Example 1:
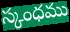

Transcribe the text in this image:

స్కంధము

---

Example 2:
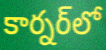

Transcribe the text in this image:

కార్నర్‌లో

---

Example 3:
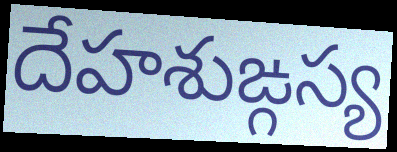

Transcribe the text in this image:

దేహశుఙ్గస్య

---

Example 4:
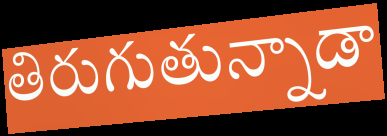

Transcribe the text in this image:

తిరుగుతున్నాడా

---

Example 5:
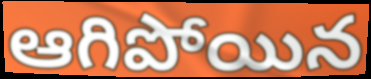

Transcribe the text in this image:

ఆగిపోయిన